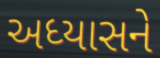
અધ્યાસને